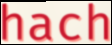
hach